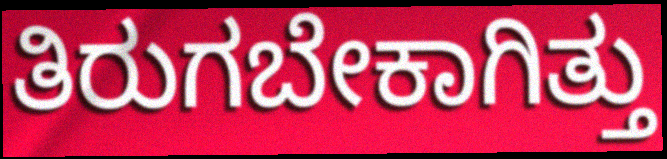
ತಿರುಗಬೇಕಾಗಿತ್ತು